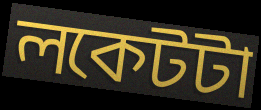
লকেটটা